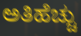
ಅತಿಹೆಚ್ಚು